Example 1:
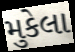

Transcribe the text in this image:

મુકેલા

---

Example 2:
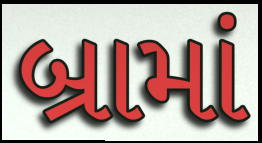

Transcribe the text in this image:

બ્રામાં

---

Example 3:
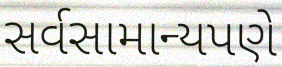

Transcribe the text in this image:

સર્વસામાન્યપણે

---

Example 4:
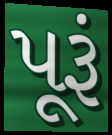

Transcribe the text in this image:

પૂરૂં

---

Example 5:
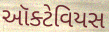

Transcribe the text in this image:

ઑક્ટેવિયસ